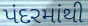
પંદરમાંથી